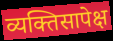
व्यक्तिसापेक्ष